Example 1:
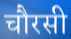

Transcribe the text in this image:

चौरसी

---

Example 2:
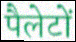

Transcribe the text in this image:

पैलेटों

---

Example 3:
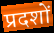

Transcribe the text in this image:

प्रदशों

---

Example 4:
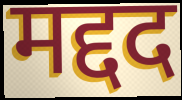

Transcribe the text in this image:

मद्दद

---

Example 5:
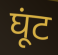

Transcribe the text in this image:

घूंट